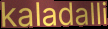
kaladalli